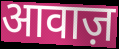
आवाज़